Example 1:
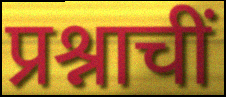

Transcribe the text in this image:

प्रश्नाचीं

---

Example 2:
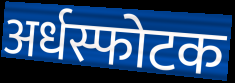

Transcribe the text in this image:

अर्धस्फोटक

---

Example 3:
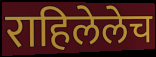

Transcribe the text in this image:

राहिलेलेच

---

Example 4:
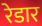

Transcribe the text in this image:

रेडार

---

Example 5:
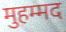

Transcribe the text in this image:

मुहम्मद